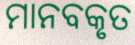
ମାନବକୃତ